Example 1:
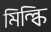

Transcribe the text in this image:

মিল্কি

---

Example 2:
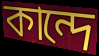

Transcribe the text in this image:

কান্দে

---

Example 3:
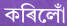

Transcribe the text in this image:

কৰিলোঁ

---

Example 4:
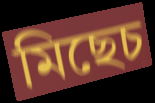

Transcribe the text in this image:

মিছেচ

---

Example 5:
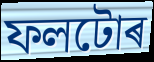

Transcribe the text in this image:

ফলটোৰ